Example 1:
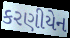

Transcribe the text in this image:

કરણીયેન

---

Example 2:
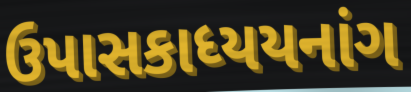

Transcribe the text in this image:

ઉપાસકાધ્યયનાંગ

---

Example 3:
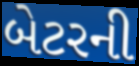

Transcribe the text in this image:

બેટરની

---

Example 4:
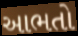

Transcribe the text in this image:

આભતો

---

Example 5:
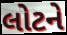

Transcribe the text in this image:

લોટને